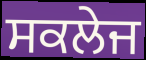
ਸਕਲੇਜ